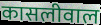
कासलीवाल